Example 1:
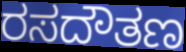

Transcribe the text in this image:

ರಸದೌತಣ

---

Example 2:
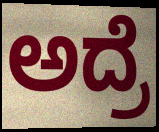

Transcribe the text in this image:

ಅದ್ರೆ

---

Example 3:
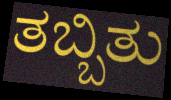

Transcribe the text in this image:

ತಬ್ಬಿತು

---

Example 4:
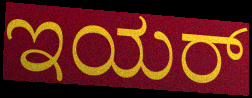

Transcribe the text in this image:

ಇಯರ್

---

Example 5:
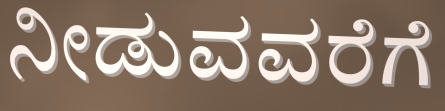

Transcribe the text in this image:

ನೀಡುವವರೆಗೆ